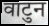
वाटुन